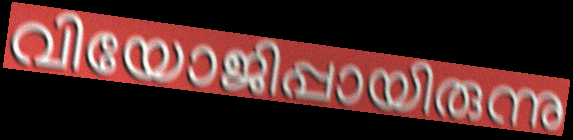
വിയോജിപ്പായിരുന്നു